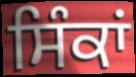
ਸਿੰਕਾਂ